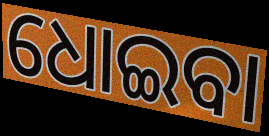
ଧୋଇବା